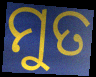
ମୁତ